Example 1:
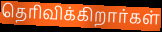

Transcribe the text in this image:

தெரிவிக்கிறார்கள்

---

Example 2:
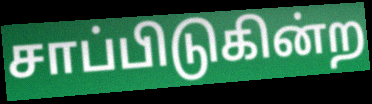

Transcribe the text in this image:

சாப்பிடுகின்ற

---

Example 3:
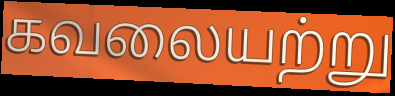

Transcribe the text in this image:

கவலையற்று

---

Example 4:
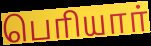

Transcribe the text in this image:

பெரியார்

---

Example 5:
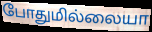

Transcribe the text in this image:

போதுமில்லையா